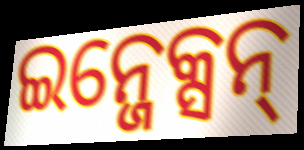
ଇନ୍ଜେକ୍ସନ୍